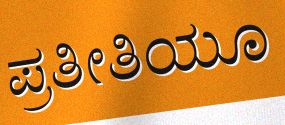
ಪ್ರತೀತಿಯೂ